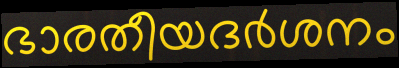
ഭാരതീയദർശനം